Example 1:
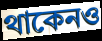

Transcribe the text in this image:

থাকেনও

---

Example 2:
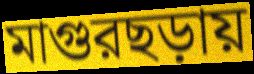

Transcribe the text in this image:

মাগুরছড়ায়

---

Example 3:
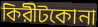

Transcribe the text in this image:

কিরীটকোনা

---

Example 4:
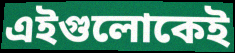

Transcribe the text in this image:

এইগুলোকেই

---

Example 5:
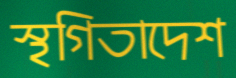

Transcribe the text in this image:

স্থগিতাদেশ